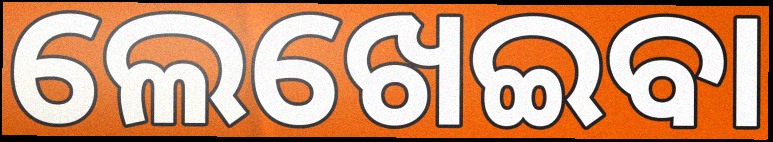
ଲେଖେଇବା